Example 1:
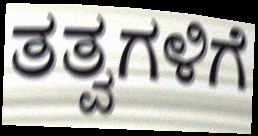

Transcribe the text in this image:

ತತ್ವಗಳಿಗೆ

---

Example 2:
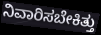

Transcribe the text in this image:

ನಿವಾರಿಸಬೇಕಿತ್ತು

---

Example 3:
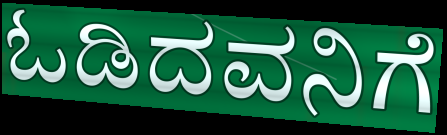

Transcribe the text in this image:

ಓಡಿದವನಿಗೆ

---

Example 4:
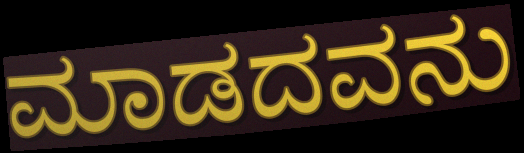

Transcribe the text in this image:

ಮಾಡದವನು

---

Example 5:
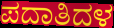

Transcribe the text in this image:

ಪದಾತಿದಳ